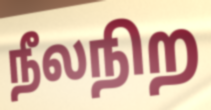
நீலநிற